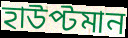
হাউপ্টমান